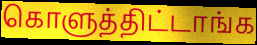
கொளுத்திட்டாங்க